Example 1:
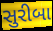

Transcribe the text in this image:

સુરીબા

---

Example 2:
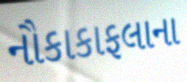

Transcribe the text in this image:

નૌકાકાફલાના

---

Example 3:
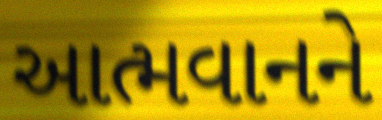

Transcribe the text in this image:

આત્મવાનને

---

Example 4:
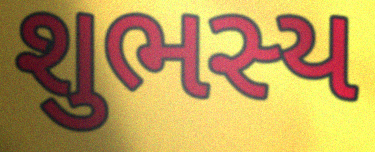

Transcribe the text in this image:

શુભસ્ય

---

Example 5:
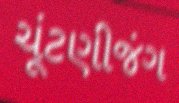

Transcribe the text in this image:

ચૂંટણીજંગ